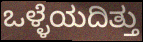
ಒಳ್ಳೆಯದಿತ್ತು